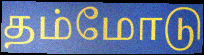
தம்மோடு